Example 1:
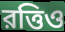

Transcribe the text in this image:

রত্তিও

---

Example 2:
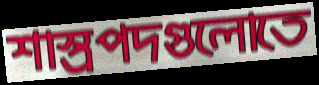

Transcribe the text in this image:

শাস্ত্রপদগুলোতে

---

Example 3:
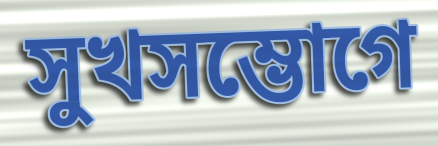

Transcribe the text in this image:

সুখসম্ভোগে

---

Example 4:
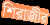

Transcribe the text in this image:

শিরাজীর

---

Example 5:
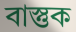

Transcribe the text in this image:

বাস্তুক